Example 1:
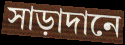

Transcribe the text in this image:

সাড়াদানে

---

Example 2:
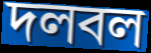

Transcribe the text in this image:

দলবল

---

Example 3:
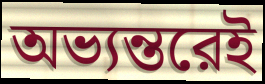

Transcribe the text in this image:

অভ্যন্তরেই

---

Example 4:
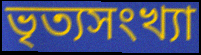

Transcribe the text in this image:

ভৃত্যসংখ্যা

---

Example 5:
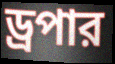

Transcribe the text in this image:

ড্রপার